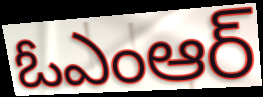
ఓఎంఆర్